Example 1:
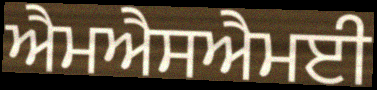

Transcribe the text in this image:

ਐਮਐਸਐਮਈ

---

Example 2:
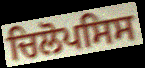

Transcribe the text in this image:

ਚਿਲੋਪਸਿਸ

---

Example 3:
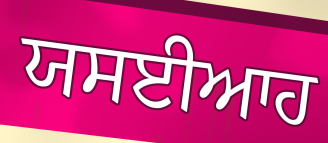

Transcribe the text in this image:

ਯਸਈਆਹ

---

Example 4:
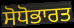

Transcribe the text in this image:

ਸੋਧੋਭਾਰਤ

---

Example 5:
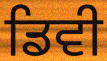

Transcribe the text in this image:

ਡਿਵੀ